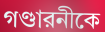
গণ্ডারনীকে